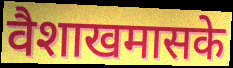
वैशाखमासके